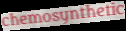
chemosynthetic